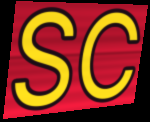
SC